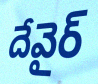
దేవైర్